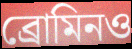
ব্রোমিনও